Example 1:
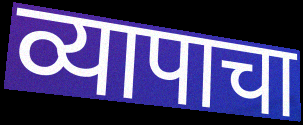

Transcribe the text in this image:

व्यापाचा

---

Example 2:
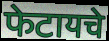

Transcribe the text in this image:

फेटायचे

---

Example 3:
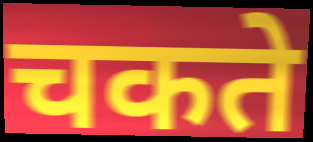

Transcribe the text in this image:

चकते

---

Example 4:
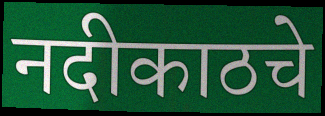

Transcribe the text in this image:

नदीकाठचे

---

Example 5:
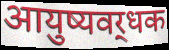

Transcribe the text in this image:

आयुष्यवर्धक